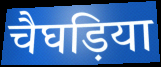
चैघड़िया